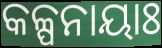
କଳ୍ପନାୟାଃ